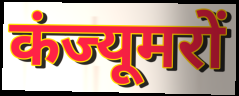
कंज्यूमरों